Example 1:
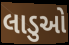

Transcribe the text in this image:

લાડુઓ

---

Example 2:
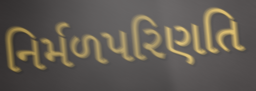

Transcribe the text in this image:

નિર્મળપરિણતિ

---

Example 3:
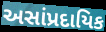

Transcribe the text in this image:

અસાંપ્રદાયિક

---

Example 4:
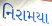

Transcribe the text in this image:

નિરામયા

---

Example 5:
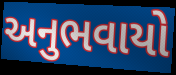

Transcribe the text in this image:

અનુભવાયો